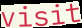
visit